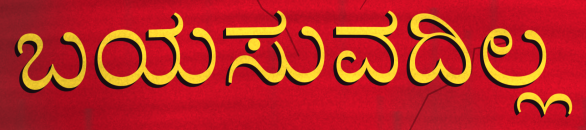
ಬಯಸುವದಿಲ್ಲ